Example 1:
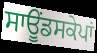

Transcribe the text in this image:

ਸਾਊਂਡਸਕੇਪਾਂ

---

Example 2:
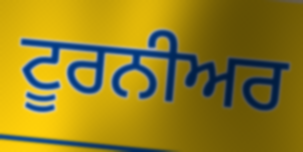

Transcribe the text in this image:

ਟੂਰਨੀਅਰ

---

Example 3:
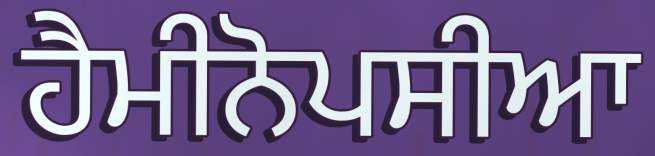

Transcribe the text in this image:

ਹੈਮੀਨੋਪਸੀਆ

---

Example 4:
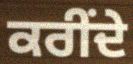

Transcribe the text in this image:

ਕਰੀਂਦੇ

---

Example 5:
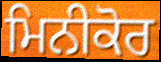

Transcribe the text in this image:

ਮਿਨੀਕੋਰ